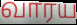
வாரய